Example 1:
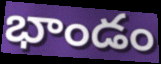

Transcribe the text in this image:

భాండం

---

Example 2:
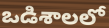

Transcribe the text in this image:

ఒడిశాలలో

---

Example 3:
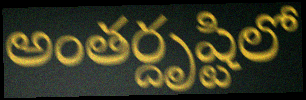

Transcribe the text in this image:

అంతర్దృష్టిలో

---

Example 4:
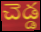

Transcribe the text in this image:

చెడ్డ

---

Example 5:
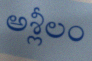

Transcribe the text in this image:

అశ్లీలం